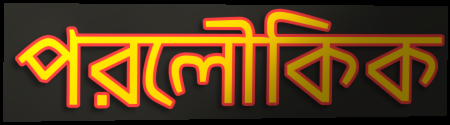
পরলৌকিক